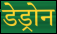
डेड्रोन